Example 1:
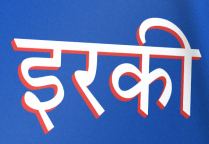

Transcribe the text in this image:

इरकी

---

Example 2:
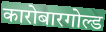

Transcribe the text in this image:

कारोबारगोल्ड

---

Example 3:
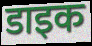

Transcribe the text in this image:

डाइक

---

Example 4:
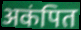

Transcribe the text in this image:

अकंपित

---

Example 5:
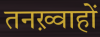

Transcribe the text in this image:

तनख़्वाहों